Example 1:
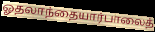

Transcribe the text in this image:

ஓதலாந்தையார்பாலைத்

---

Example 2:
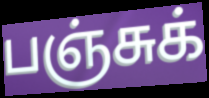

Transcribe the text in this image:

பஞ்சுக்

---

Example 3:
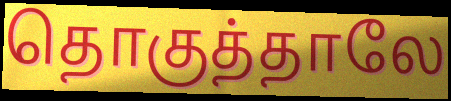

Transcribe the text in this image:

தொகுத்தாலே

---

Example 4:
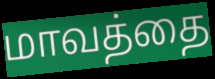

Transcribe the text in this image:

மாவத்தை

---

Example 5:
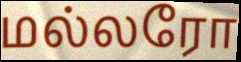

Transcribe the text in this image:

மல்லரோ